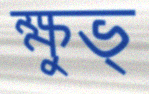
ক্ষুভ্